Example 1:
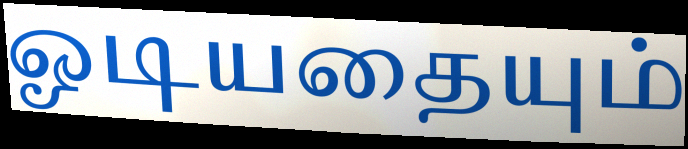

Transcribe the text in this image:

ஓடியதையும்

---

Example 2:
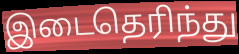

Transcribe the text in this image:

இடைதெரிந்து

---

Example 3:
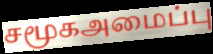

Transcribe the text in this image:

சமூகஅமைப்பு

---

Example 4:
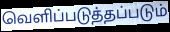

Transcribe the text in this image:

வெளிப்படுத்தப்படும்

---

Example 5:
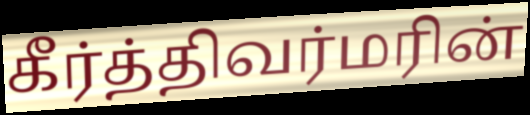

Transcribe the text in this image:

கீர்த்திவர்மரின்